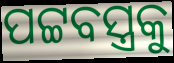
ପଟ୍ଟବସ୍ତ୍ରକୁ